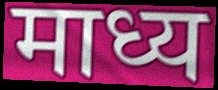
माध्‍य